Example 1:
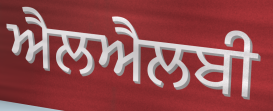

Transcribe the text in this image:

ਐਲਐਲਬੀ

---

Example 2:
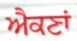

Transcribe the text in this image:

ਐਕਣਾਂ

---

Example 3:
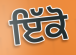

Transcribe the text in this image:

ਇੱਕੋ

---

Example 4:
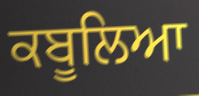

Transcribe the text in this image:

ਕਬੂਲਿਆ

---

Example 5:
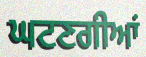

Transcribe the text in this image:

ਘਟਣਗੀਆਂ